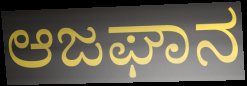
ಆಜಘಾನ